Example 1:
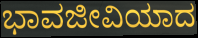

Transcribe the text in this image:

ಭಾವಜೀವಿಯಾದ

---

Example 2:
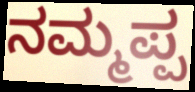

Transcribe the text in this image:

ನಮ್ಮಪ್ಪ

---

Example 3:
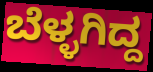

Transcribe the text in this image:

ಬೆಳ್ಳಗಿದ್ದ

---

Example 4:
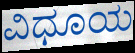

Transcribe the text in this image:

ವಿಧೂಯ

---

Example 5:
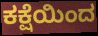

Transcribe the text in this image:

ಕಕ್ಷೆಯಿಂದ